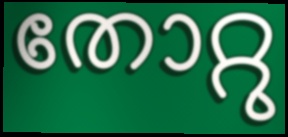
തോറ്റു